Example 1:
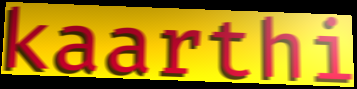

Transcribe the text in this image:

kaarthi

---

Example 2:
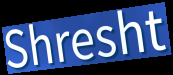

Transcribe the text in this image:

Shresht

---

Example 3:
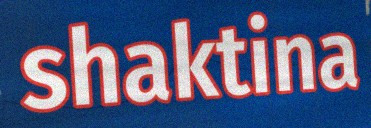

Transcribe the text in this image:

shaktina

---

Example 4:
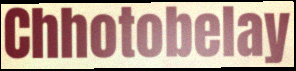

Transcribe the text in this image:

Chhotobelay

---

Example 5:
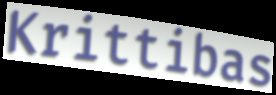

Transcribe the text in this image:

Krittibas